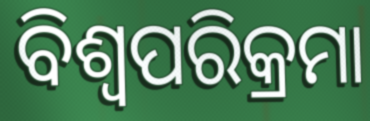
ବିଶ୍ୱପରିକ୍ରମା